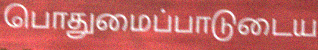
பொதுமைப்பாடுடைய